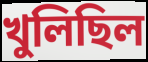
খুলিছিল